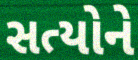
સત્યોને